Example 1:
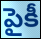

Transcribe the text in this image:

పైకీ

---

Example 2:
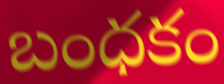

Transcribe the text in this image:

బంధకం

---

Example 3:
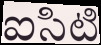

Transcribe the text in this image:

ఐసిటి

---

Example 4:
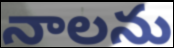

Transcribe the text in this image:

నాలను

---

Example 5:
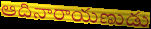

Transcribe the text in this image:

ఆదినారాయణుడు